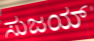
ಸುಜಯ್